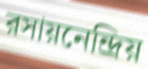
রসায়নেন্দ্রিয়